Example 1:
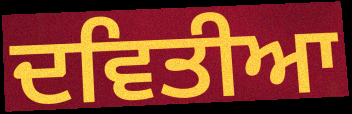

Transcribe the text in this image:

ਦਵਿਤੀਆ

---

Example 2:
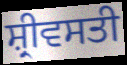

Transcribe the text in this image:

ਸ਼੍ਰੀਵਸਤੀ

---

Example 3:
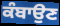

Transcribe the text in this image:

ਕੰਬਾਉਣ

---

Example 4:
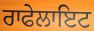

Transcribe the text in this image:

ਰਾਫੇਲਾਇਟ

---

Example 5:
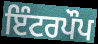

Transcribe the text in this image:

ਇੰਟਰਪੌਪ